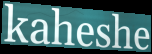
kaheshe